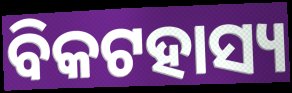
ବିକଟହାସ୍ୟ